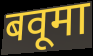
बवूमा